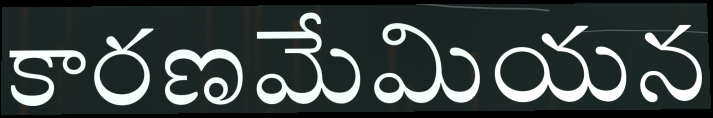
కారణమేమియన